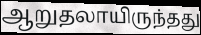
ஆறுதலாயிருந்தது